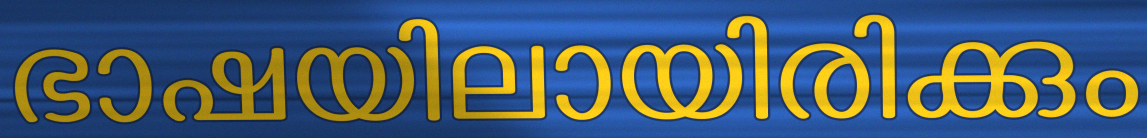
ഭാഷയിലായിരിക്കും